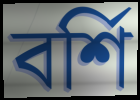
বর্শি